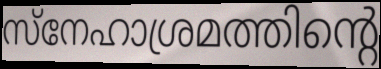
സ്നേഹാശ്രമത്തിന്റെ